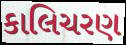
કાલિચરણ